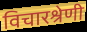
विचारश्रेणी